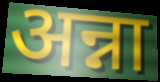
अन्ना